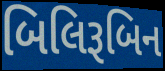
બિલિરૂબિન